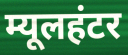
म्यूलहंटर